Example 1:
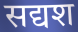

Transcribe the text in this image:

सद्यश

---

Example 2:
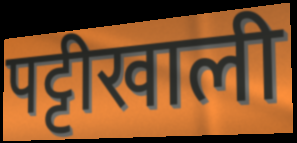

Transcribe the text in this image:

पट्टीखाली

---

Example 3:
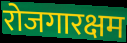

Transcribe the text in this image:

रोजगारक्षम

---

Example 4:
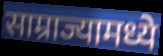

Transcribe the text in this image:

साम्राज्यामध्ये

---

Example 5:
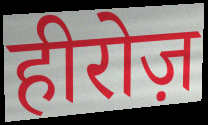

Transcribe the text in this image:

हीरोज़